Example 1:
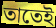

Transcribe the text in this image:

তাতেই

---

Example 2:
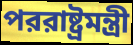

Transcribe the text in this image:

পররাষ্ট্রমন্ত্রী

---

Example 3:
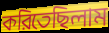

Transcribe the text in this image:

করিতেছিলাম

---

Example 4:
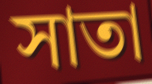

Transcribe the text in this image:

সাতা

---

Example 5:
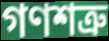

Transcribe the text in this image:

গণশত্রু